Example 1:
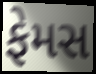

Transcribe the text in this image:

ફેમસ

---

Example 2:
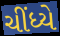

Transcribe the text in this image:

ચીંધ્યે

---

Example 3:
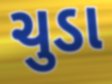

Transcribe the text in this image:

ચુડા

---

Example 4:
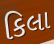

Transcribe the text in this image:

કિલા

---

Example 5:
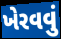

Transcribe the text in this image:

ખેરવવું